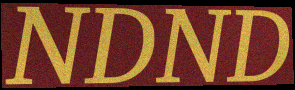
NDND